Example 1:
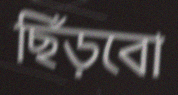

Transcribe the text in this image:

ছিঁড়বো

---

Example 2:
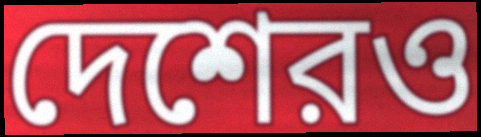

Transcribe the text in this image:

দেশেরও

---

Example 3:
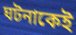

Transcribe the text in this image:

ঘটনাকেই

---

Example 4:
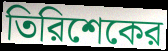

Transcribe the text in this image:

তিরিশেকের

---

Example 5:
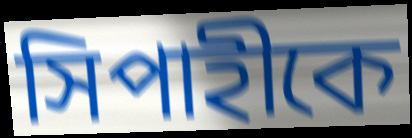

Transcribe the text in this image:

সিপাহীকে